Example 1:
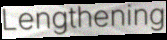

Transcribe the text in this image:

Lengthening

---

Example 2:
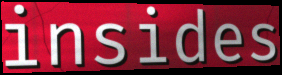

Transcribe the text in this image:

insides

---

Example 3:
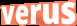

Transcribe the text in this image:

verus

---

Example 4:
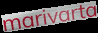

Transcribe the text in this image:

marivarta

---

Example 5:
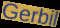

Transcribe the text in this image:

Gerbil